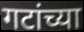
गटांच्या